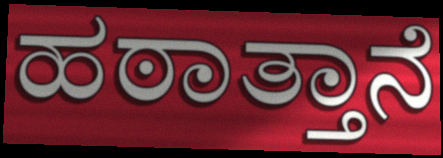
ಹಠಾತ್ತಾನೆ